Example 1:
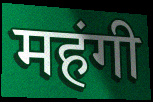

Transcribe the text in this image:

महंगी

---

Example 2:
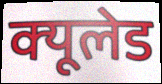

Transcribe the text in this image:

क्यूलेड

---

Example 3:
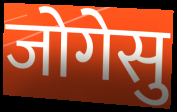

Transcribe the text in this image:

जोगेसु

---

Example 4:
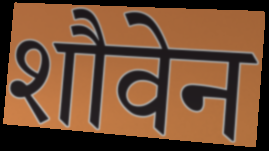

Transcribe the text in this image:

शौवेन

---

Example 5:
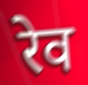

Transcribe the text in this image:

रेव